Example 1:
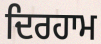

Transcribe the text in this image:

ਦਿਰਹਾਮ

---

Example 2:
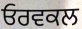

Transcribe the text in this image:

ਓਰਵਕਲ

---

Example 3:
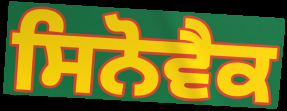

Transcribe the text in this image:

ਸਿਨੋਵੈਕ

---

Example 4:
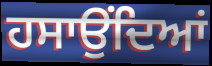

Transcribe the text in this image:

ਹਸਾਉਂਦਿਆਂ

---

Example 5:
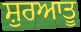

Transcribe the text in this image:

ਸ਼ੁਰਆਤੂ